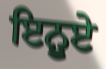
ਇਨੂਏ